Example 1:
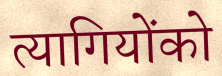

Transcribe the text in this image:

त्यागियोंको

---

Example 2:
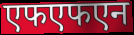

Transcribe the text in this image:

एफएफएन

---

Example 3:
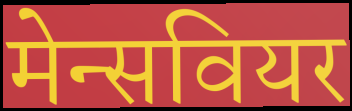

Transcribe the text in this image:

मेन्सवियर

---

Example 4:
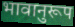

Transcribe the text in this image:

भावानुरूप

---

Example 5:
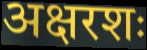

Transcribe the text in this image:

अक्षरशः